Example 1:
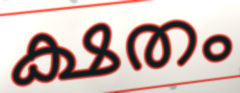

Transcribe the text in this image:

ക്ഷതം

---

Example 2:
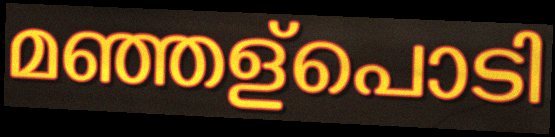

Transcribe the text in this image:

മഞ്ഞള്പൊടി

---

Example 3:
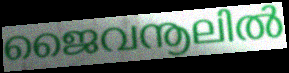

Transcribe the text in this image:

ജൈവനൂലിൽ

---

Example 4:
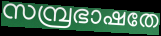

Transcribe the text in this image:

സമ്പ്രഭാഷതേ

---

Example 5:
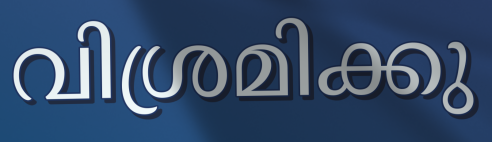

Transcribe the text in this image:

വിശ്രമിക്കു